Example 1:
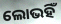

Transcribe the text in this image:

ଲୋଭହିଁ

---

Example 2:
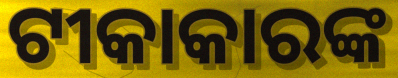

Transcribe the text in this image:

ଟୀକାକାରଙ୍କ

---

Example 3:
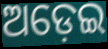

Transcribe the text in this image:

ଅଡ଼େଇ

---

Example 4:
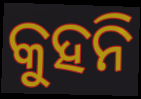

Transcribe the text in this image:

କୁହନି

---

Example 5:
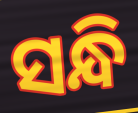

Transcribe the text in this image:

ସନ୍ଧି